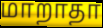
மாறாதா